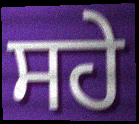
ਸਹੇ